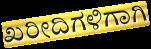
ಖರೀದಿಗಳಿಗಾಗಿ